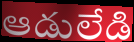
ఆడులేడి